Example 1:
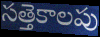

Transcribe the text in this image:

సత్తెకాలపు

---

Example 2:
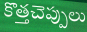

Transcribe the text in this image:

కొత్తచెప్పులు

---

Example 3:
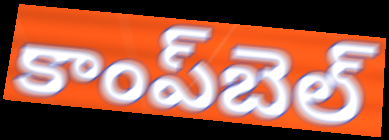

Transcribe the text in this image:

కాంప్‌బెల్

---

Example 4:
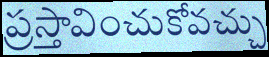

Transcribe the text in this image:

ప్రస్తావించుకోవచ్చు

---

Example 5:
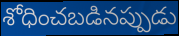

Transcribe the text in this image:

శోధించబడినప్పుడు